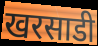
खरसाडी